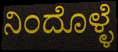
ನಿಂದೊಳ್ಳೆ